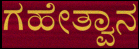
ಗಹೇತ್ವಾನ